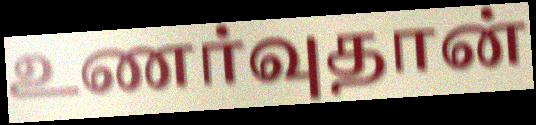
உணர்வுதான்